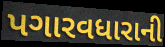
પગારવધારાની